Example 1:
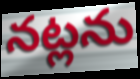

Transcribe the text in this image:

నట్లను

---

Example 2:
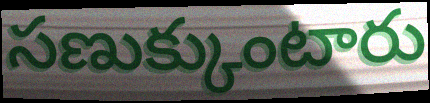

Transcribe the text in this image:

సణుక్కుంటారు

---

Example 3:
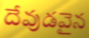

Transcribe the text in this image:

దేవుడవైన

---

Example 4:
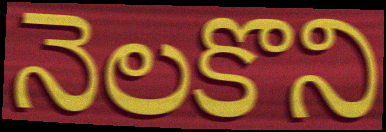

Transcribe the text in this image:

నెలకొని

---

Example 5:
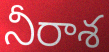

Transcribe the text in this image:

నీరాశ